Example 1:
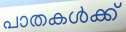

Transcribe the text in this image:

പാതകൾക്ക്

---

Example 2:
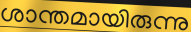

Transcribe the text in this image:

ശാന്തമായിരുന്നു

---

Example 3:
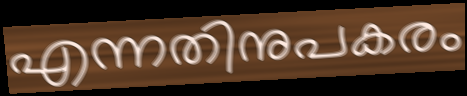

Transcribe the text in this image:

എന്നതിനുപകരം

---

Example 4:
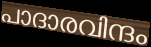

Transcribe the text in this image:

പാദാരവിന്ദം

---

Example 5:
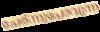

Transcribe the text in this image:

ചേര്ന്നുപോവുന്ന